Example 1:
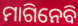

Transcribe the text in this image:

ମାଗିନେବି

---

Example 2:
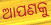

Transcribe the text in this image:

ଆପଣକୁ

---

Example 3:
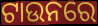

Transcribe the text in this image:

ଟାଉନରେ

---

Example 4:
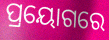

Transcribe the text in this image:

ପ୍ରୟୋଗରେ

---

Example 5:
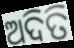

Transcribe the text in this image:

ଅଦିତି